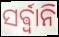
ସର୍ଵ୍ଵାନି